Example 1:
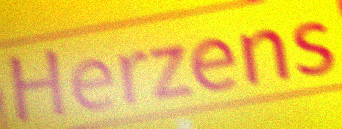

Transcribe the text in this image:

Herzens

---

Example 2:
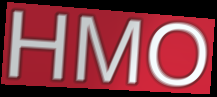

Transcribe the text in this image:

HMO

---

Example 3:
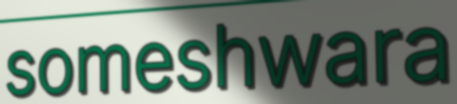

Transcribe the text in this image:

someshwara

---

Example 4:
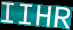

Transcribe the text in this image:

IIHR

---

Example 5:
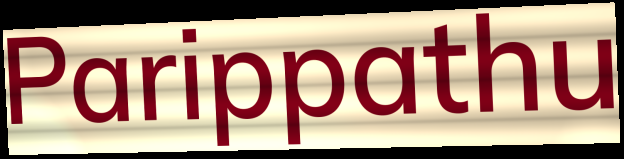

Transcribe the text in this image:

Parippathu